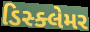
ડિસ્ક્લેમર